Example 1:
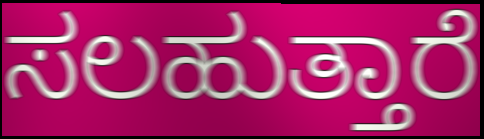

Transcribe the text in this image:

ಸಲಹುತ್ತಾರೆ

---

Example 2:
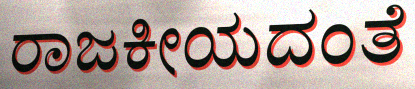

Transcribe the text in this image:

ರಾಜಕೀಯದಂತೆ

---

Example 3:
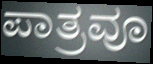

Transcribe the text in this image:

ಪಾತ್ರವೂ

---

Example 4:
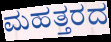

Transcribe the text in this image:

ಮಹತ್ತರದ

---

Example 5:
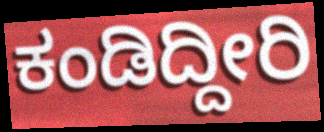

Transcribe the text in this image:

ಕಂಡಿದ್ದೀರಿ